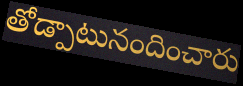
తోడ్పాటునందించారు